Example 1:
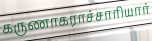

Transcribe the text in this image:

கருணாகராச்சாரியார்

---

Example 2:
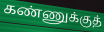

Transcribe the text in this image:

கண்ணுக்குத்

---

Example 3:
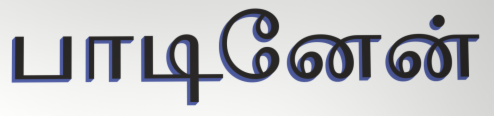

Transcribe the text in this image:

பாடினேன்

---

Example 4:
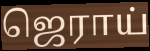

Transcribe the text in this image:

ஜெராய்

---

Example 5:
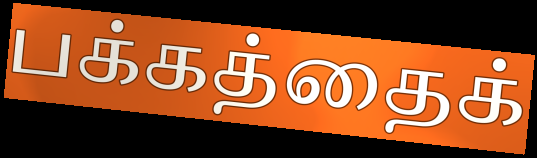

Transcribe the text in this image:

பக்கத்தைக்